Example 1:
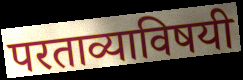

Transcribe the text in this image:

परताव्याविषयी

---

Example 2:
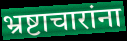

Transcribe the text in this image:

भ्रष्टाचारांना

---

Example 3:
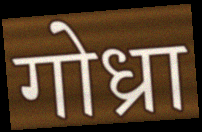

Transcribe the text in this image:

गोध्रा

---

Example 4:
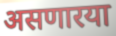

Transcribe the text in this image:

असणारया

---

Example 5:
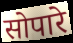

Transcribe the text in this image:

सोपारे